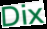
Dix